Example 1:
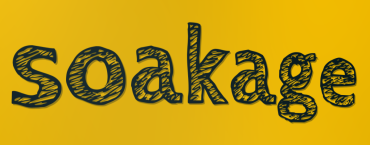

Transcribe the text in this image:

soakage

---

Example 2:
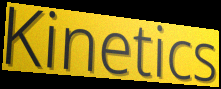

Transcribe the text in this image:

Kinetics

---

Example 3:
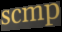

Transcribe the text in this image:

scmp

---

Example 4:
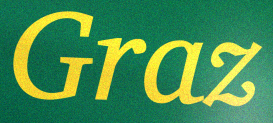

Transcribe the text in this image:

Graz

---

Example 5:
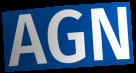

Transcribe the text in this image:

AGN